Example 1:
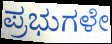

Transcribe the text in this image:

ಪ್ರಭುಗಳೇ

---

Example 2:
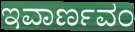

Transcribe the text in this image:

ಇವಾರ್ಣವಂ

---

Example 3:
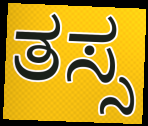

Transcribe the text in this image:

ತಸ್ಸ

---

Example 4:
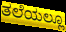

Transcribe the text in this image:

ತಲೆಯಲ್ಲೂ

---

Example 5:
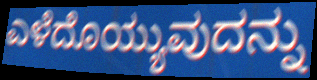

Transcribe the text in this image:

ಎಳೆದೊಯ್ಯುವುದನ್ನು